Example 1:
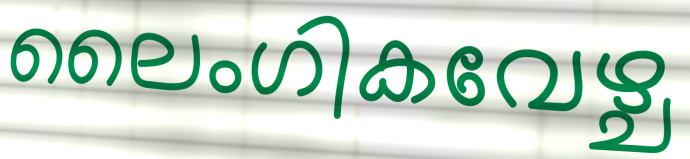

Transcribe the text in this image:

ലൈംഗികവേഴ്ച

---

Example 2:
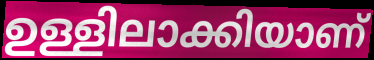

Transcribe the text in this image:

ഉള്ളിലാക്കിയാണ്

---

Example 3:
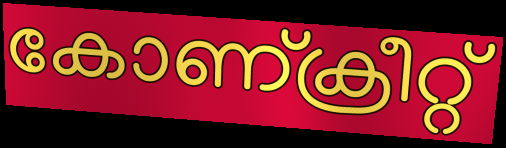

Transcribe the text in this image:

കോണ്ക്രീറ്റ്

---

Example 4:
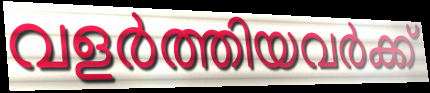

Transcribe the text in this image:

വളർത്തിയവർക്ക്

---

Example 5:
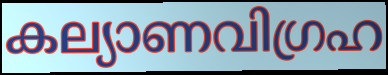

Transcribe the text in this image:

കല്യാണവിഗ്രഹ